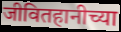
जीवितहानीच्या